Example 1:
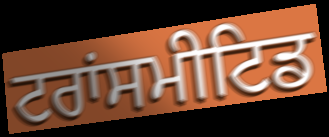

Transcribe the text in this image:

ਟਰਾਂਸਮੀਟਿਡ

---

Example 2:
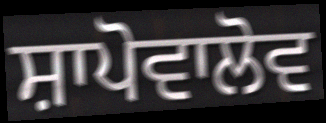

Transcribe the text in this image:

ਸ਼ਾਪੋਵਾਲੋਵ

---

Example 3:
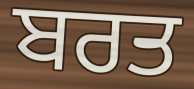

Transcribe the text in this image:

ਬਰਤ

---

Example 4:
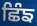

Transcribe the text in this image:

ਛਿੰਙ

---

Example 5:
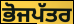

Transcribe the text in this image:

ਭੋਜਪੱਤਰ